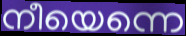
നീയെന്നെ